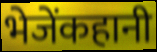
भेजेंकहानी